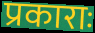
प्रकाराः